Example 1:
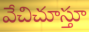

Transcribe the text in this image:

వేచిచూస్తూ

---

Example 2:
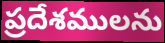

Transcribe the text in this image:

ప్రదేశములను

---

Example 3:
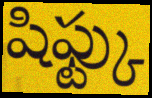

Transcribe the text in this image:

షిఫ్ట్కు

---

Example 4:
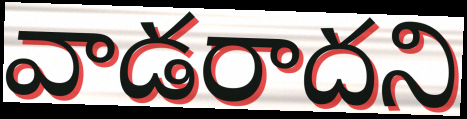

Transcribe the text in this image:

వాడరాదని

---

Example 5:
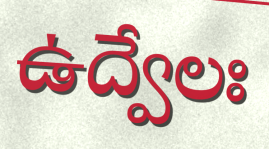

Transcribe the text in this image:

ఉద్వేలః